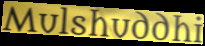
Mulshuddhi